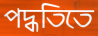
পদ্ধতিতে